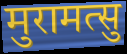
मुरामत्सु